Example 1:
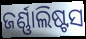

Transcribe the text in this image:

ଜର୍ଣ୍ଣାଲିଷ୍ଟସ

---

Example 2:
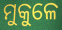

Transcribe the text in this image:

ମୁକୁଳେ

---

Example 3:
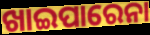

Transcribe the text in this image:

ଖାଇପାରେନା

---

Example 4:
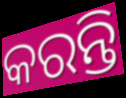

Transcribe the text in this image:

କରନ୍ତି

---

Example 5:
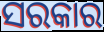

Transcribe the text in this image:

ସରକାର